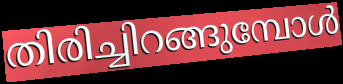
തിരിച്ചിറങ്ങുമ്പോൾ